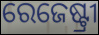
ରେଜେଷ୍ଟ୍ରୀ